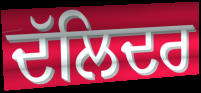
ਦੱਲਿਦਰ